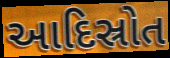
આદિસ્રોત